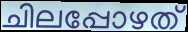
ചിലപ്പോഴത്